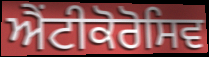
ਐਂਟੀਕੋਰੋਸਿਵ